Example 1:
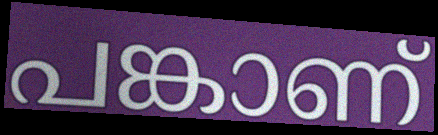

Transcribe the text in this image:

പങ്കാണ്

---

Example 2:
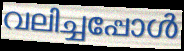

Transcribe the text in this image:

വലിച്ചപ്പോൾ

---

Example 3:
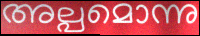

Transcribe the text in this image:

അല്പമൊന്നു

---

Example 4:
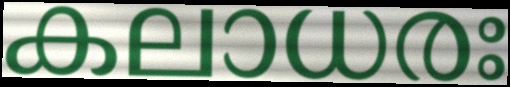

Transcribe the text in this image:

കലാധരഃ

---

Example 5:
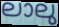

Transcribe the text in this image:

ലാലു